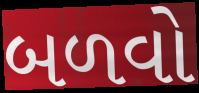
બળવો